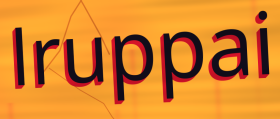
Iruppai